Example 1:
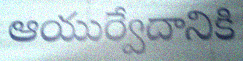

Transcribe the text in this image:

ఆయుర్వేదానికి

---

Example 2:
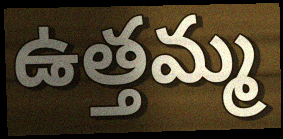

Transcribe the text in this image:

ఉత్తమ్మ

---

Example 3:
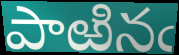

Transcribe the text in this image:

పాఱినఁ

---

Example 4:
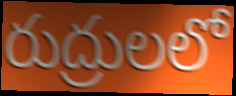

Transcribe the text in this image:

రుద్రులలో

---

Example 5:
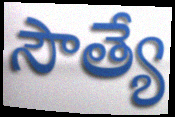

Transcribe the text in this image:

సౌత్యే